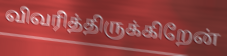
விவரித்திருக்கிறேன்